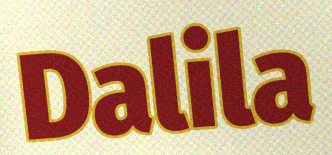
Dalila